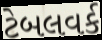
ટેબલવર્ક